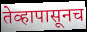
तेव्हापासूनच